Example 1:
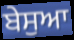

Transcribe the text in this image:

ਬੇਸੁਆ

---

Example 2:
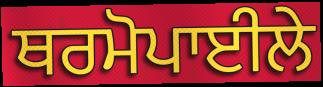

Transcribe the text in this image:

ਥਰਮੋਪਾਈਲੇ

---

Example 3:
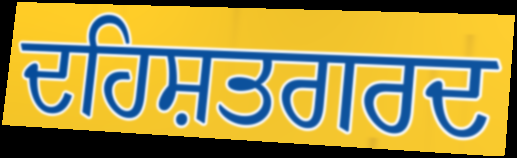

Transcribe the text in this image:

ਦਹਿਸ਼ਤਗਰਦ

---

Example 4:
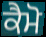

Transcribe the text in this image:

ਕੈਮੋ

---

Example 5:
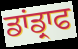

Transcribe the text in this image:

ਡਾਂਡ੍ਰਾਫ